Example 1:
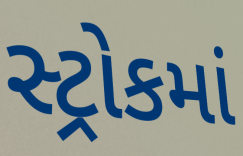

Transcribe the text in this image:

સ્ટ્રોકમાં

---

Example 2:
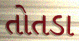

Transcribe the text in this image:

તોતડા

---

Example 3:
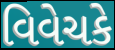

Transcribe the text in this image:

વિવેચકે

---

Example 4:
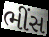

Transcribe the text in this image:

ભીંસ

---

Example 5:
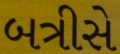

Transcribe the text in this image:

બત્રીસે